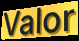
Valor